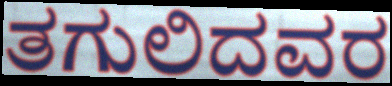
ತಗುಲಿದವರ